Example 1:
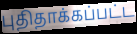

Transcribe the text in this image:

புதிதாக்கப்பட்ட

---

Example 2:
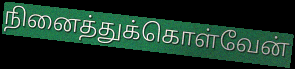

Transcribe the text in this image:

நினைத்துக்கொள்வேன்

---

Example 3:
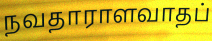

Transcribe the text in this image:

நவதாராளவாதப்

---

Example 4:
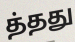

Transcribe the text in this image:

த்தது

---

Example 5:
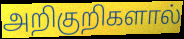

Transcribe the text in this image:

அறிகுறிகளால்